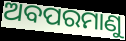
ଅବପରମାଣୁ